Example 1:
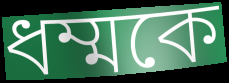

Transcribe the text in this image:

ধম্মকে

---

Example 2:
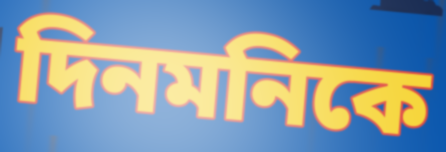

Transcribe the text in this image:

দিনমনিকে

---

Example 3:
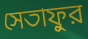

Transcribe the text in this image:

সেতাফুর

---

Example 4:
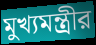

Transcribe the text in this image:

মুখ্যমন্ত্রীর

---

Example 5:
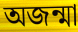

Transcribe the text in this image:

অজন্মা